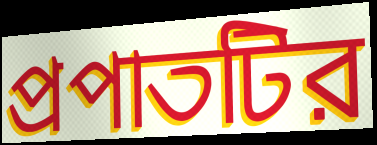
প্রপাতটির